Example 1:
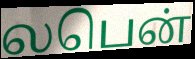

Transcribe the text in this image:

லபென்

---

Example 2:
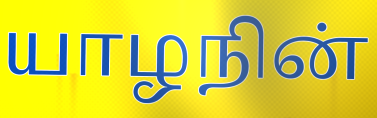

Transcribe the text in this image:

யாழநின்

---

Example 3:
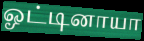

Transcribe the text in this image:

ஓட்டினாயா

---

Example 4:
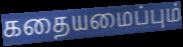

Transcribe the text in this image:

கதையமைப்பும்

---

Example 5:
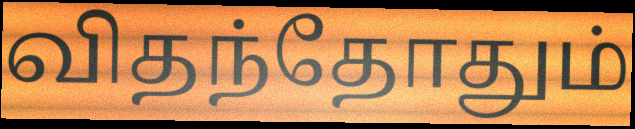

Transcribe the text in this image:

விதந்தோதும்